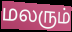
மலரும்